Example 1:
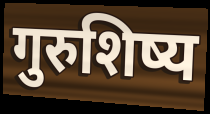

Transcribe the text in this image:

गुरुशिष्य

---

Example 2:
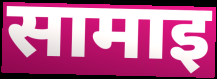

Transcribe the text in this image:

सामाइ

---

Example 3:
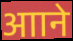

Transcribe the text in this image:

आाने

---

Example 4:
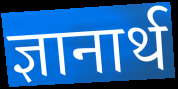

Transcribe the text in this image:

ज्ञानार्थ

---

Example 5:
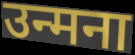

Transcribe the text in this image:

उन्मना